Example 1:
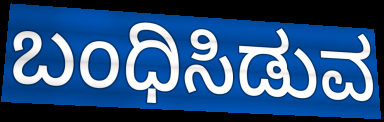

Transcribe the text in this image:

ಬಂಧಿಸಿಡುವ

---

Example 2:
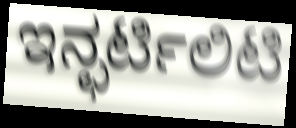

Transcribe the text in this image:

ಇನ್ಫರ್ಟಿಲಿಟಿ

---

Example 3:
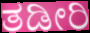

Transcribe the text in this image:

ತಡೀರಿ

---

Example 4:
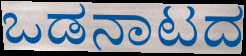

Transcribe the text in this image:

ಒಡನಾಟದ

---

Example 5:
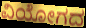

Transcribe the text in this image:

ವಿಯೋಗದ